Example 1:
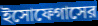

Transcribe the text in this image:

ইসোফেগাসের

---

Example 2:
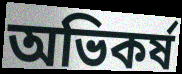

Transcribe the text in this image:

অভিকর্ষ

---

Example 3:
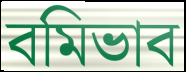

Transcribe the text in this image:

বমিভাব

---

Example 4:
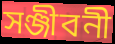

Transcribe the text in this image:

সঞ্জীবনী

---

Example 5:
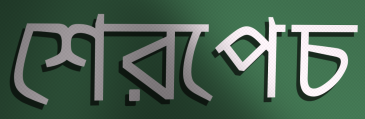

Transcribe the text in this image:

শেরপেচ